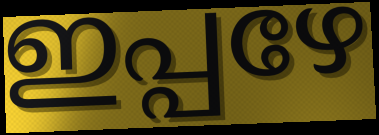
ഇപ്പഴേ